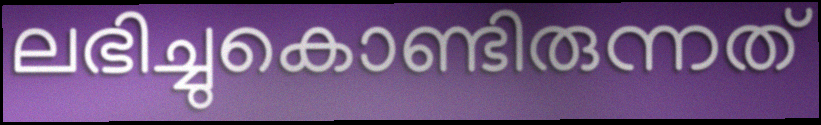
ലഭിച്ചുകൊണ്ടിരുന്നത്